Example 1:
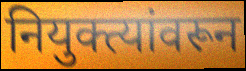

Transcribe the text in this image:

नियुक्त्यांवरून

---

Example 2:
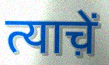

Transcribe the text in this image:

त्याच़ें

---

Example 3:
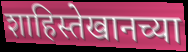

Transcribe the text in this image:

शाहिस्तेखानच्या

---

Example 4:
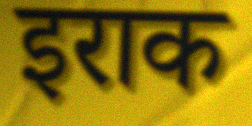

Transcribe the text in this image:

इराक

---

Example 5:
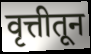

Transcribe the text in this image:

वृत्तीतून